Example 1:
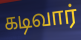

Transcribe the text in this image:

கடிவார்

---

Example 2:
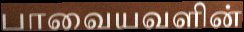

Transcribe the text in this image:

பாவையவளின்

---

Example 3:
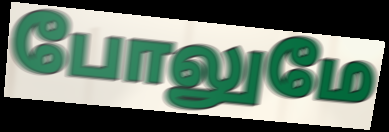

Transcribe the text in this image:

போலுமே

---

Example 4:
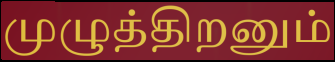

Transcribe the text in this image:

முழுத்திறனும்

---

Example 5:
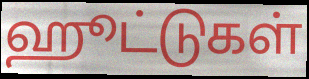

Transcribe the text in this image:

ஹூட்டுகள்